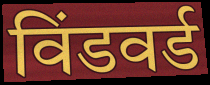
विंडवर्ड